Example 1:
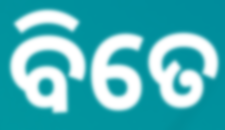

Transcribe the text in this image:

ବିତେ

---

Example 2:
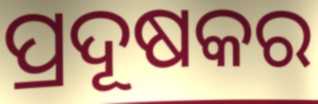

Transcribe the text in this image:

ପ୍ରଦୂଷକର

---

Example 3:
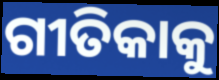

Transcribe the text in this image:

ଗୀତିକାକୁ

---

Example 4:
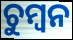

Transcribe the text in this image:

ଚୁମ୍ବନ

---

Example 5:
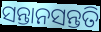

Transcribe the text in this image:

ସନ୍ତାନସନ୍ତତି